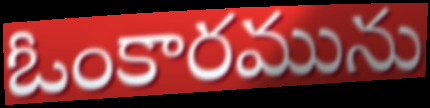
ఓంకారమును